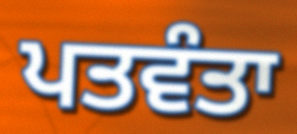
ਪਤਵੰਤਾ